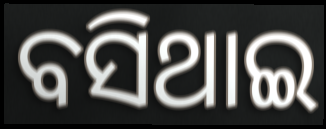
ବସିଥାଇ